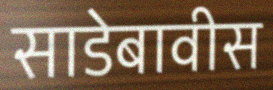
साडेबावीस